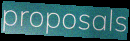
proposals